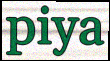
piya